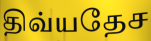
திவ்யதேச